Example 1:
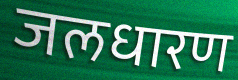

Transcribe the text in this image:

जलधारण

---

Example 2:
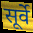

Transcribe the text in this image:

सूर्वे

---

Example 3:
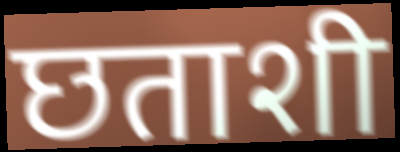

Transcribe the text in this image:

छताशी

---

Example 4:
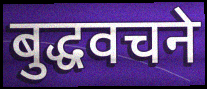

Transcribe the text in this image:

बुद्धवचने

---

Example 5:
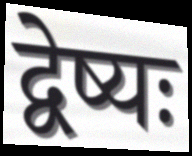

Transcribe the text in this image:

द्वेष्यः